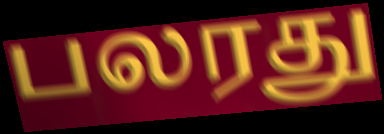
பலரது